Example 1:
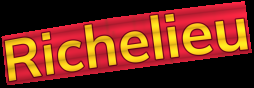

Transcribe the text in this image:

Richelieu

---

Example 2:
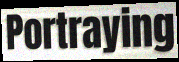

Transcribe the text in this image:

Portraying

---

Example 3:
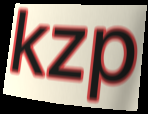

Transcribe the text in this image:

kzp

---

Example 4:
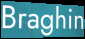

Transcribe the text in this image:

Braghin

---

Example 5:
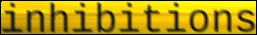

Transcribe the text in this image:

inhibitions